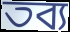
তব্য